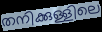
തനിക്കുള്ളിലെ